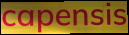
capensis